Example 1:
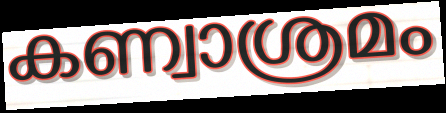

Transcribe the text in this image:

കണ്വാശ്രമം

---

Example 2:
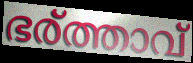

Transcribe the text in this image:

ഭര്ത്താവ്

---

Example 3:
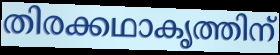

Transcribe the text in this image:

തിരക്കഥാകൃത്തിന്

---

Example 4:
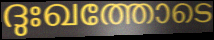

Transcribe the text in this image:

ദുഃഖത്തോടെ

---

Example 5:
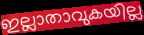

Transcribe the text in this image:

ഇല്ലാതാവുകയില്ല